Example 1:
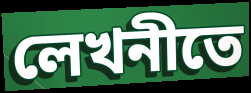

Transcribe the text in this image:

লেখনীতে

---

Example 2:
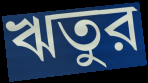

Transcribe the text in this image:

ঋতুর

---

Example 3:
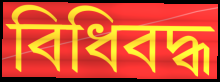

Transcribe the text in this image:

বিধিবদ্ধ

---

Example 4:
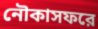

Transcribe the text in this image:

নৌকাসফরে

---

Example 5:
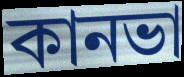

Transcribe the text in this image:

কানভা